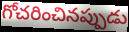
గోచరించినప్పుడు